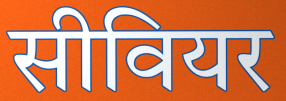
सीवियर